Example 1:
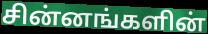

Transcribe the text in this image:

சின்னங்களின்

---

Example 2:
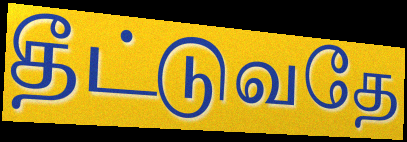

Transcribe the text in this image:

தீட்டுவதே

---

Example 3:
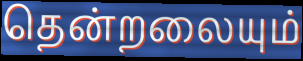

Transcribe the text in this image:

தென்றலையும்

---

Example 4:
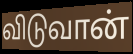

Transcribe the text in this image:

விடுவான்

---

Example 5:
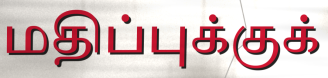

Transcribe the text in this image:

மதிப்புக்குக்